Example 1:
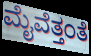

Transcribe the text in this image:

ಮೈವೆತ್ತಂತೆ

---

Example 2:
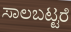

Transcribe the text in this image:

ಸಾಲಬಟ್ಟರೆ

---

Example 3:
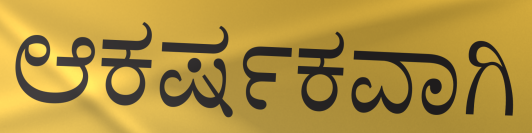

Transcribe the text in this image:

ಆಕರ್ಷಕವಾಗಿ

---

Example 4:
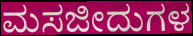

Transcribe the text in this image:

ಮಸಜೀದುಗಳ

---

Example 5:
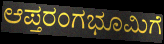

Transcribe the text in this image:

ಆಪ್ತರಂಗಭೂಮಿಗೆ